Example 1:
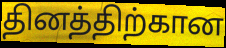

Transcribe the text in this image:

தினத்திற்கான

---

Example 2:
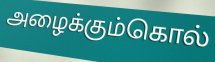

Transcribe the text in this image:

அழைக்கும்கொல்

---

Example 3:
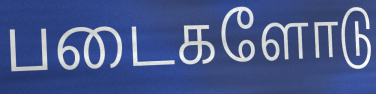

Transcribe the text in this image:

படைகளோடு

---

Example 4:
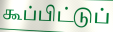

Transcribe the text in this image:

கூப்பிட்டுப்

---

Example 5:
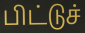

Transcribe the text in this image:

பிட்டுச்